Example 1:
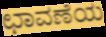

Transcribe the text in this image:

ಛಾವಣೆಯ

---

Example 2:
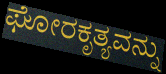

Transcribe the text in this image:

ಘೋರಕೃತ್ಯವನ್ನು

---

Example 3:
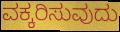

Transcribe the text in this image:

ವಕ್ಕರಿಸುವುದು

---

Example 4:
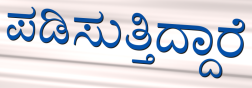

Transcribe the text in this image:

ಪಡಿಸುತ್ತಿದ್ದಾರೆ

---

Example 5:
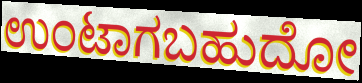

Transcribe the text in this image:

ಉಂಟಾಗಬಹುದೋ